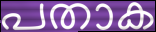
പതാക